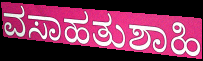
ವಸಾಹತುಶಾಹಿ